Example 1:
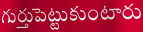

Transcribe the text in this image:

గుర్తుపెట్టుకుంటారు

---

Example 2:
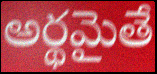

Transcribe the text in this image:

అర్థమైతే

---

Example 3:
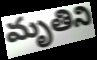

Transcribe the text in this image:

మృతిని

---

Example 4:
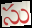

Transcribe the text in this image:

సు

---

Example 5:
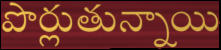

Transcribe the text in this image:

పొర్లుతున్నాయి